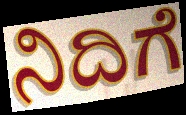
ನಿದಿಗೆ